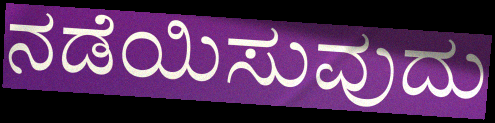
ನಡೆಯಿಸುವುದು